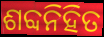
ଶବ୍ଦନିହିତ